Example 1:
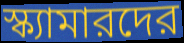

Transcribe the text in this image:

স্ক্যামারদের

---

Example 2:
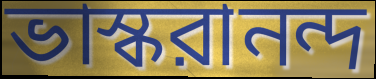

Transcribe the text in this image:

ভাস্করানন্দ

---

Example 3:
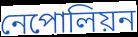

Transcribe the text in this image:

নেপোলিয়ন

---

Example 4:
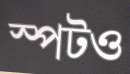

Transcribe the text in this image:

স্পটও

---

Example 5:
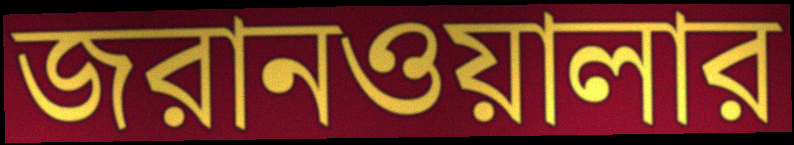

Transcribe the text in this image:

জরানওয়ালার